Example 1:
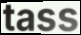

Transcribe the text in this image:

tass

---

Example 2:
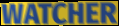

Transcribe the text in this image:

WATCHER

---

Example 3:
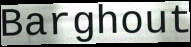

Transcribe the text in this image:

Barghout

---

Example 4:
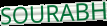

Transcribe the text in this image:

SOURABH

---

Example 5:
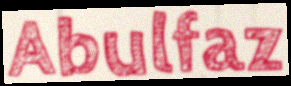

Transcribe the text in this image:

Abulfaz